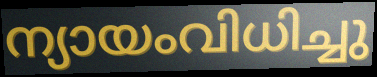
ന്യായംവിധിച്ചു